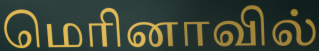
மெரினாவில்